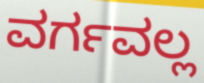
ವರ್ಗವಲ್ಲ